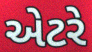
એટરે